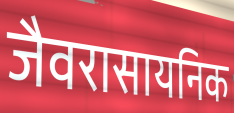
जैवरासायनिक